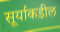
सूर्याकडील